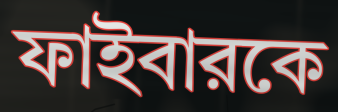
ফাইবারকে